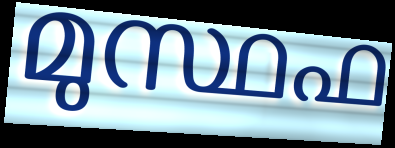
മുസ്ഥഫ